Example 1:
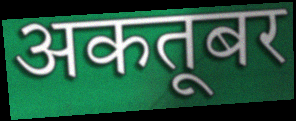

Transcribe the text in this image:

अकतूबर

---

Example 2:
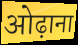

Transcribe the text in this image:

ओढ़ाना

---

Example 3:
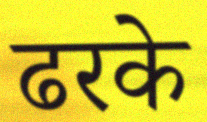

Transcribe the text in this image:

ढरके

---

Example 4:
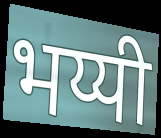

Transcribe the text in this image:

भय्यी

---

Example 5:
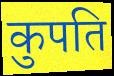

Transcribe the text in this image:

कुपति